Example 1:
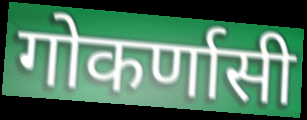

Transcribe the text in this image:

गोकर्णासी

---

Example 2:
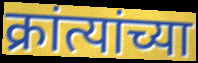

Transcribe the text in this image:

क्रांत्यांच्या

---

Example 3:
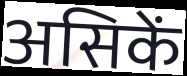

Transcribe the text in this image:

असिकें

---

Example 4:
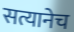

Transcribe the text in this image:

सत्यानेच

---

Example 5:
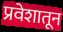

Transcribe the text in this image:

प्रवेशातून